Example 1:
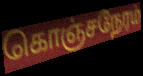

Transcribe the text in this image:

கொஞ்சநேரம்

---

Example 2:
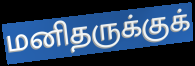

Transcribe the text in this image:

மனிதருக்குக்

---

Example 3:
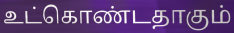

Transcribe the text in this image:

உட்கொண்டதாகும்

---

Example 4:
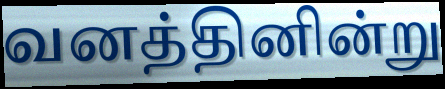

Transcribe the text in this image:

வனத்தினின்று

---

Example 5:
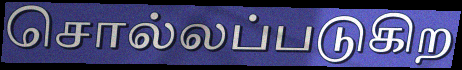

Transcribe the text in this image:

சொல்லப்படுகிற